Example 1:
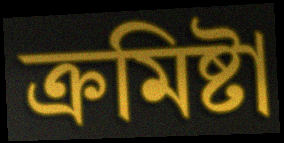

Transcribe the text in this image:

ক্ৰমিষ্টা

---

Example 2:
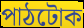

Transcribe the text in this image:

পাঠটোক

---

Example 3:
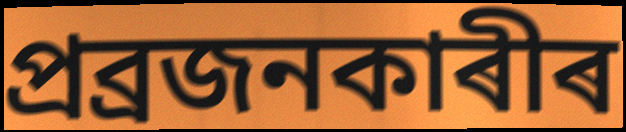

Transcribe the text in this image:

প্ৰব্ৰজনকাৰীৰ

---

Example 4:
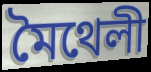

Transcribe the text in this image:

মৈথেলী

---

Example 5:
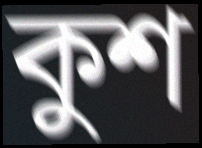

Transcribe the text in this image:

কুশ